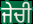
ਜੇਚੀ